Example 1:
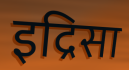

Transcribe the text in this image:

इद्रिसा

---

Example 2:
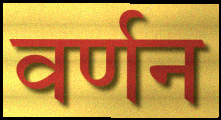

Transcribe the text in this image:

वर्णन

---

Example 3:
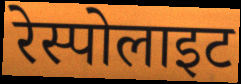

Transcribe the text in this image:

रेस्पोलाइट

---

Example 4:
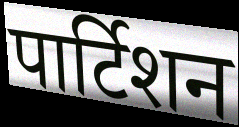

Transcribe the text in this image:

पार्टिशन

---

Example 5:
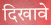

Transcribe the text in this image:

दिखावे